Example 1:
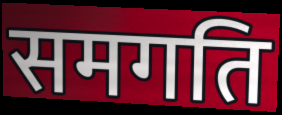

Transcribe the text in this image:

समगति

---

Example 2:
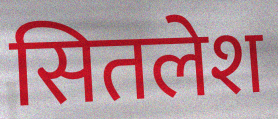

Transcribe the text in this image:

सितलेश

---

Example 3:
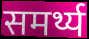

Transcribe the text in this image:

समर्थ्य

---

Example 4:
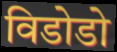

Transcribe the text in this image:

विडोडो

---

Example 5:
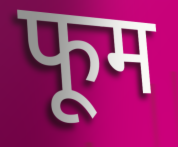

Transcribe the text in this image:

फूम